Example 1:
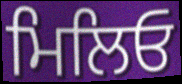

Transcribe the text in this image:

ਮਿਲਿਓ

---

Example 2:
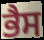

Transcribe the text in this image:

ਭੈਸ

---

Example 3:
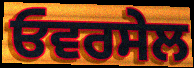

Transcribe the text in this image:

ਓਵਰਸੇਲ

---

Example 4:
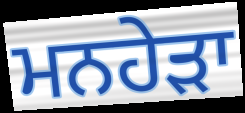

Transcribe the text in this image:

ਮਨਹੇੜਾ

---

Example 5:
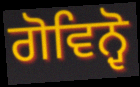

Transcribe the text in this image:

ਗੋਵਿਨ੍ਦੋ